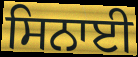
ਸਿਨਾਈ